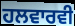
ਹਲਵਾਰਵੀ